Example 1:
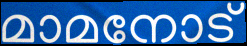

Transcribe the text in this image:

മാമനോട്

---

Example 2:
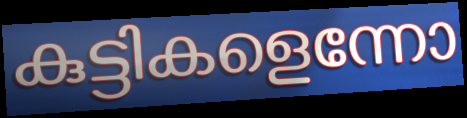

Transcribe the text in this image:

കുട്ടികളെന്നോ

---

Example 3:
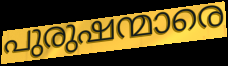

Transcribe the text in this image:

പുരുഷന്മാരെ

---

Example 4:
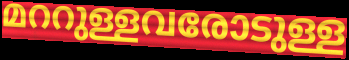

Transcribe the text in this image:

മററുള്ളവരോടുള്ള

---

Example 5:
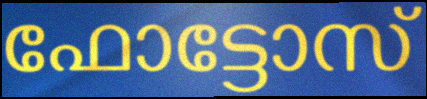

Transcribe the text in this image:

ഫോട്ടോസ്